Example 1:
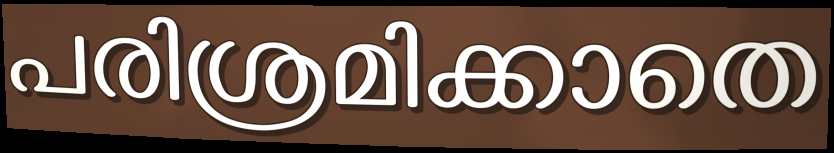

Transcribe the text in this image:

പരിശ്രമിക്കാതെ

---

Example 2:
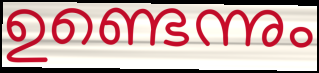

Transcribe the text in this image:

ഉണ്ടെന്നും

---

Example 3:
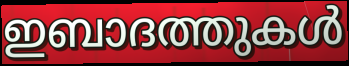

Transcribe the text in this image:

ഇബാദത്തുകൾ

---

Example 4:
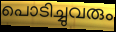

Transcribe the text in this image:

പൊടിച്ചുവരും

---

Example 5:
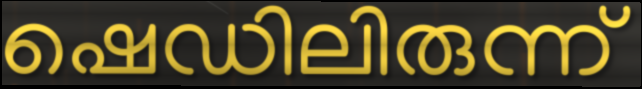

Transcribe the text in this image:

ഷെഡിലിരുന്ന്